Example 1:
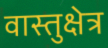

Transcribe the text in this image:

वास्तुक्षेत्र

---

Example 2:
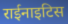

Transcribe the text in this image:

राईनाइटिस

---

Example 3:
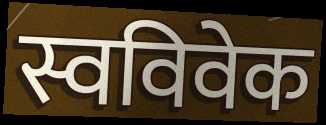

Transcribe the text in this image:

स्वविवेक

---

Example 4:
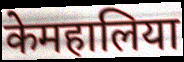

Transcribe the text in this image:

केमहालिया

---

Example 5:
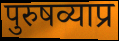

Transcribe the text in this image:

पुरुषव्याप्र